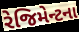
રેજિમેન્ટના